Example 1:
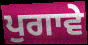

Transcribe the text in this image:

ਪੁਗਾਵੇ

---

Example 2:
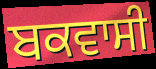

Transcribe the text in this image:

ਬਕਵਾਸੀ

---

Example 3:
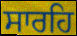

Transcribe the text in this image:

ਸਾਰਹਿ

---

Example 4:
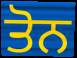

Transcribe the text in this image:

ਤੋਨ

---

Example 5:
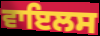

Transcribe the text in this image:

ਵਾਇਲਸ